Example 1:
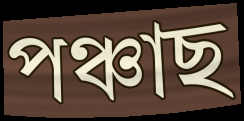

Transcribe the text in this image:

পঞ্চাছ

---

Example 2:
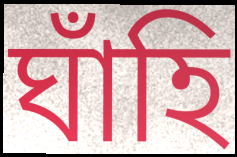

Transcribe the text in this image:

ঘাঁহি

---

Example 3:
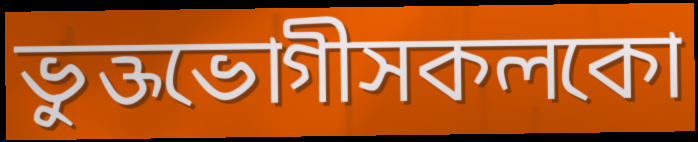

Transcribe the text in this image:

ভুক্তভোগীসকলকো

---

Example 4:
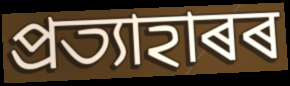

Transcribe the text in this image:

প্ৰত্যাহাৰৰ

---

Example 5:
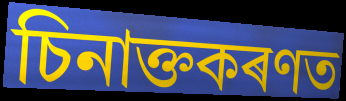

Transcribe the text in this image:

চিনাক্তকৰণত